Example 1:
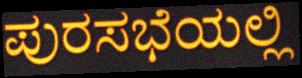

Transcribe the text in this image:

ಪುರಸಭೆಯಲ್ಲಿ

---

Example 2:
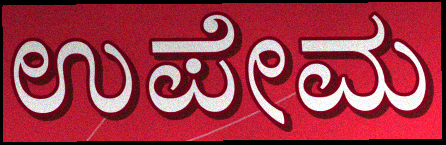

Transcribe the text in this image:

ಉಪೇಮ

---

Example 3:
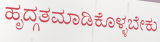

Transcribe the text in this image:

ಹೃದ್ಗತಮಾಡಿಕೊಳ್ಳಬೇಕು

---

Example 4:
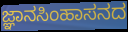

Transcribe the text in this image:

ಜ್ಞಾನಸಿಂಹಾಸನದ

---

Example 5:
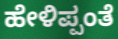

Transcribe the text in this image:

ಹೇಳಿಪ್ಪಂತೆ